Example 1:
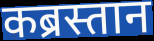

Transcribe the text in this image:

कब्रस्तान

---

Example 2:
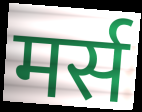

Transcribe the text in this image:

मर्स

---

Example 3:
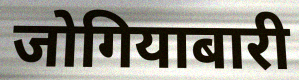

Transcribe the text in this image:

जोगियाबारी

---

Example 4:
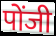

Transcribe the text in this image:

पोंजी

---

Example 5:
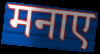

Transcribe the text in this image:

मनाए